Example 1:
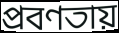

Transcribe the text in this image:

প্রবণতায়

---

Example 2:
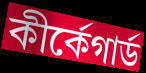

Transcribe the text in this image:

কীর্কেগার্ড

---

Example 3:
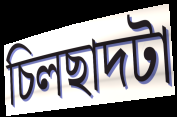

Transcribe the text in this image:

চিলছাদটা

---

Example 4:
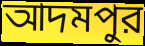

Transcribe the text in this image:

আদমপুর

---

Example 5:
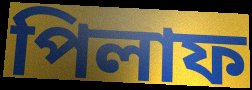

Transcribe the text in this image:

পিলাফ